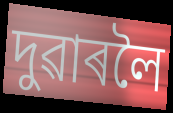
দুৱাৰলৈ